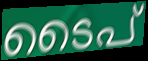
ടൈപ്